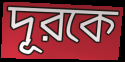
দূরকে